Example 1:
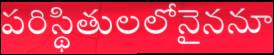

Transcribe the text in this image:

పరిస్థితులలోనైననూ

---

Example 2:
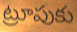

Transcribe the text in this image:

ట్రూపుకు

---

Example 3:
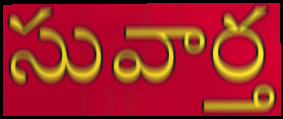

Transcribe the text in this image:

సువార్త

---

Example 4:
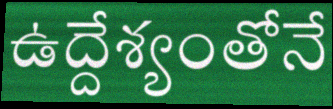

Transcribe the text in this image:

ఉద్దేశ్యంతోనే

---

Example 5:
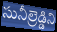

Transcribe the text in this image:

సునీల్రెడ్డిని